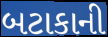
બટાકાની